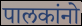
पालकांनो